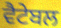
ਵੈਟੇਬਲ